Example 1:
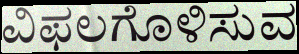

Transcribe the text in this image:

ವಿಫಲಗೊಳಿಸುವ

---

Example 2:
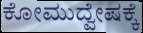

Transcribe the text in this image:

ಕೋಮುದ್ವೇಷಕ್ಕೆ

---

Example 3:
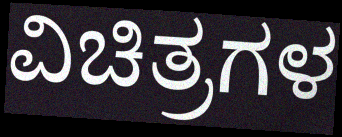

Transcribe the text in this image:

ವಿಚಿತ್ರಗಳ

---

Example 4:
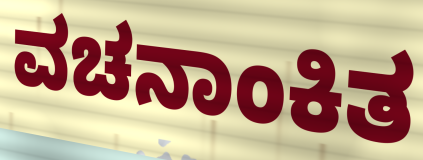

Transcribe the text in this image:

ವಚನಾಂಕಿತ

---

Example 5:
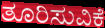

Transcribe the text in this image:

ತೂರಿಸುವಿಕೆ